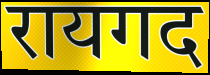
रायगद